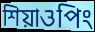
শিয়াওপিং